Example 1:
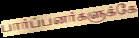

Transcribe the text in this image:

பார்ப்பனர்களுக்கே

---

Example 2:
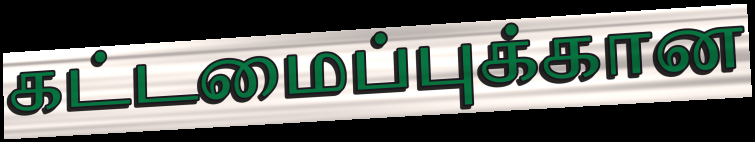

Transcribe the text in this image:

கட்டமைப்புக்கான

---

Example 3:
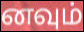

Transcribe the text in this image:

னவும்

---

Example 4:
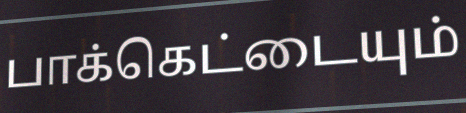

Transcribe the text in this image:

பாக்கெட்டையும்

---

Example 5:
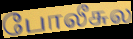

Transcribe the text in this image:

போலீசுல